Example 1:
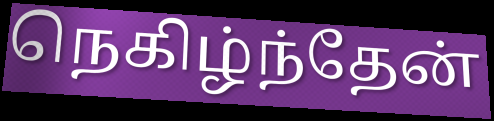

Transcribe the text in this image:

நெகிழ்ந்தேன்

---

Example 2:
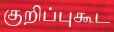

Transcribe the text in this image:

குறிப்புகூட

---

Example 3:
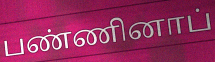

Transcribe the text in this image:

பண்ணினாப்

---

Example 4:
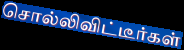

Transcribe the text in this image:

சொல்லிவிட்டீர்கள்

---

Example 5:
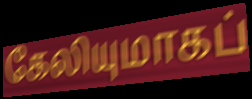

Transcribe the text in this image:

கேலியுமாகப்